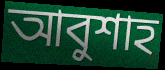
আবুশাহ